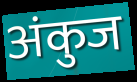
अंकुज